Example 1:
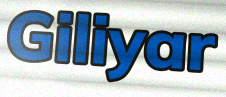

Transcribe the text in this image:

Giliyar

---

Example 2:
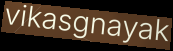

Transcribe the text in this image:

vikasgnayak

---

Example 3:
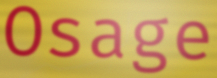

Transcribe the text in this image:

Osage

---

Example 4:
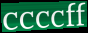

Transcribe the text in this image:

ccccff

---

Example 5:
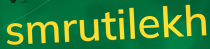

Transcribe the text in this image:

smrutilekh